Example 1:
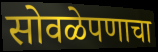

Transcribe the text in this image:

सोवळेपणाचा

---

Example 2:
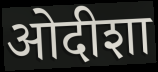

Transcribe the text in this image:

ओदीशा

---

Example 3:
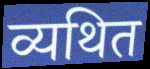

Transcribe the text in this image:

व्यथित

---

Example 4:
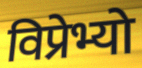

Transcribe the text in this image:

विप्रेभ्यो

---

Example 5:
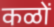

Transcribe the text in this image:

कळों